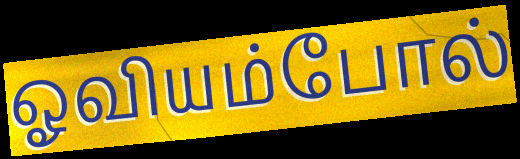
ஓவியம்போல்